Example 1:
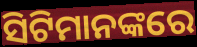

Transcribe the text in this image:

ସିଟିମାନଙ୍କରେ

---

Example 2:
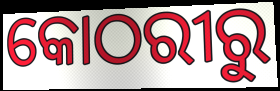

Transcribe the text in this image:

କୋଠରୀରୁ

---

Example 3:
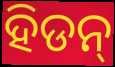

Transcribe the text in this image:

ହିଡନ୍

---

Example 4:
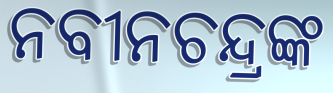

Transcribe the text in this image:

ନବୀନଚନ୍ଦ୍ରଙ୍କ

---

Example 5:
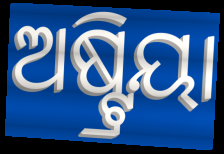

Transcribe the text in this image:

ଅଷ୍ଟ୍ରିୟା